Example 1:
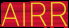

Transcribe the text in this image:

AIRR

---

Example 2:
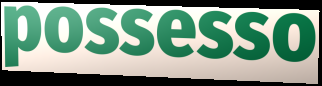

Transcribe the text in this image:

possesso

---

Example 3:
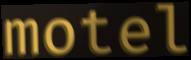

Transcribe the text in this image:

motel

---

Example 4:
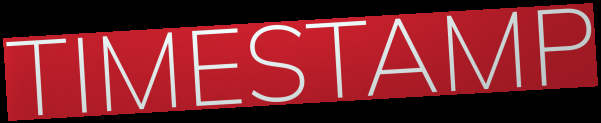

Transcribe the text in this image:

TIMESTAMP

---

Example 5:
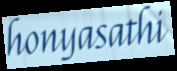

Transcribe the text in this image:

honyasathi